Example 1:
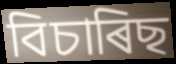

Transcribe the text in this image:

বিচাৰিছ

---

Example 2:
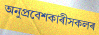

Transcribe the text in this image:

অনুপ্ৰবেশকাৰীসকলৰ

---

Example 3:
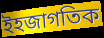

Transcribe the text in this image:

ইহজাগতিক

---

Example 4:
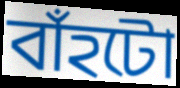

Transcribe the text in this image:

বাঁহটো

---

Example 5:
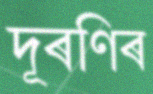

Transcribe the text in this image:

দূৰণিৰ